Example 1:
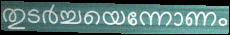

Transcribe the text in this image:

തുടർച്ചയെന്നോണം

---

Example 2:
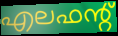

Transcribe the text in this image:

എലഫന്റ്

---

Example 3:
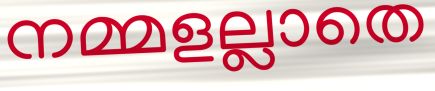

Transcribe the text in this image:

നമ്മളല്ലാതെ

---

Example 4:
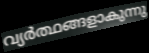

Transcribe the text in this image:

വ്യർത്ഥങ്ങളാകുന്നു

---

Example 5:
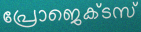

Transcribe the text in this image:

പ്രോജെക്ടസ്